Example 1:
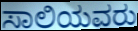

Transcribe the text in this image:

ಸಾಲಿಯವರು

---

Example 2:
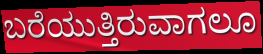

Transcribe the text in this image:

ಬರೆಯುತ್ತಿರುವಾಗಲೂ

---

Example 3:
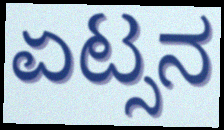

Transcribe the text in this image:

ಏಟ್ಸನ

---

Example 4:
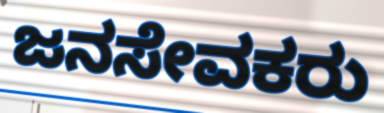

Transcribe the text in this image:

ಜನಸೇವಕರು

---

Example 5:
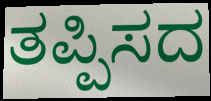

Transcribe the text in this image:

ತಪ್ಪಿಸದ